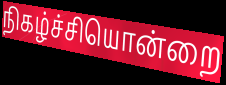
நிகழ்ச்சியொன்றை